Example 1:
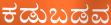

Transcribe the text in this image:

ಕಡುಬಡವ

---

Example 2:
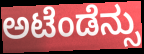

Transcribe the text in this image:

ಅಟೆಂಡೆನ್ಸು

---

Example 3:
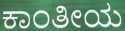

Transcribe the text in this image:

ಕಾಂತೀಯ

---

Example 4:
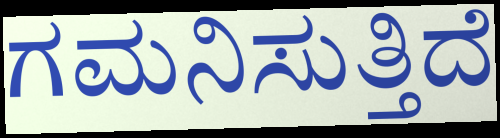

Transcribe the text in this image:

ಗಮನಿಸುತ್ತಿದೆ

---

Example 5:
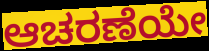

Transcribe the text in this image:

ಆಚರಣೆಯೇ